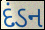
દંડન